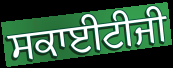
ਸਕਾਈਟੀਜੀ